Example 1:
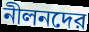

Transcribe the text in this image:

নীলনদের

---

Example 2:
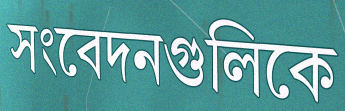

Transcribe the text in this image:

সংবেদনগুলিকে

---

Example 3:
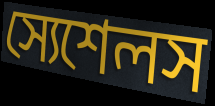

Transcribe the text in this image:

স্যেশেলস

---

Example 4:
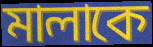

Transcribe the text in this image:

মালাকে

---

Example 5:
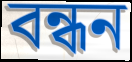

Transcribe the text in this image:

বন্ধন